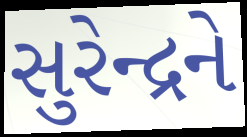
સુરેન્દ્રને